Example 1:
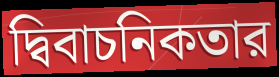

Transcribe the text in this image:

দ্বিবাচনিকতার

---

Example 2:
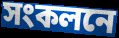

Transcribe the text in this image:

সংকলনে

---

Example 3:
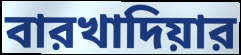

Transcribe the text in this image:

বারখাদিয়ার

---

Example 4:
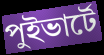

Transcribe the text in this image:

পুইভার্টে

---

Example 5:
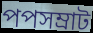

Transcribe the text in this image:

পপসম্রাট